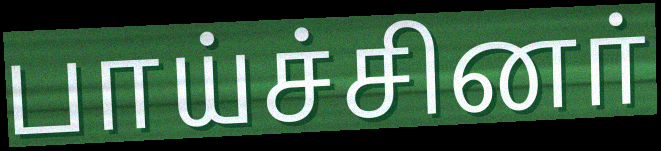
பாய்ச்சினர்